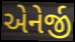
એનેર્જી